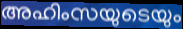
അഹിംസയുടെയും